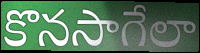
కొనసాగేలా